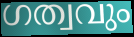
ഗത്വവും